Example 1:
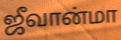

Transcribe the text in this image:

ஜீவான்மா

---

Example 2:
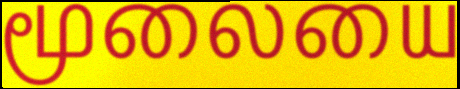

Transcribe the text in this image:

மூலையை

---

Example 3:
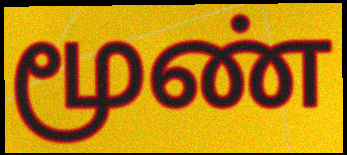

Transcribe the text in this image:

மூண்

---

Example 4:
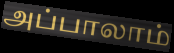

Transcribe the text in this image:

அப்பாலாம்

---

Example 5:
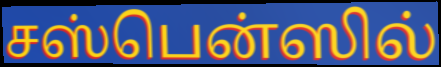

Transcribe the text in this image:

சஸ்பென்ஸில்